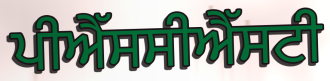
ਪੀਐੱਸਸੀਐੱਸਟੀ